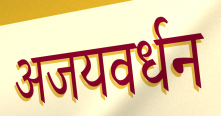
अजयवर्धन